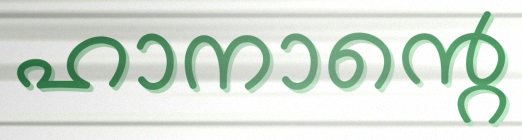
ഹാനാന്റെ